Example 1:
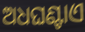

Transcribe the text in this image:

ଅଧଘଣ୍ଟାଏ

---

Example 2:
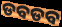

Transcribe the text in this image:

ଡବଡବ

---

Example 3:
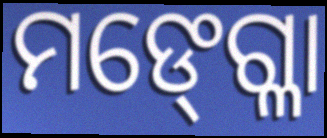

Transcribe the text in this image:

ମଙ୍ଗ୍ଳୋ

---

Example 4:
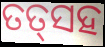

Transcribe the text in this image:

ତତ୍‌ସହ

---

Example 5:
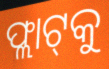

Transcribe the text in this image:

ଫ୍ଲାଟ୍‌କୁ